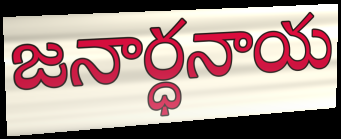
జనార్ధనాయ